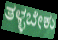
ತಳ್ಳಬೇಕು